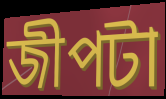
জীপটা